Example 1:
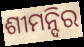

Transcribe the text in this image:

ଶୀମନ୍ଦିର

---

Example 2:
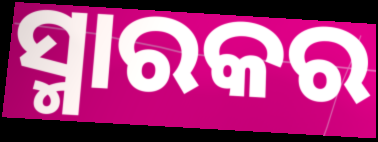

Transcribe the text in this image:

ସ୍ମାରକର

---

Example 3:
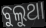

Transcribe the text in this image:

ବୁଲୁଥା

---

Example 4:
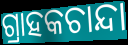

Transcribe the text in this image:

ଗ୍ରାହକଚାନ୍ଦା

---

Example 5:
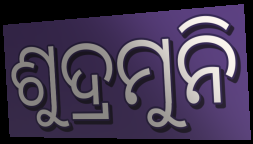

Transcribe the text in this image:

ଶୁଦ୍ରମୁନି